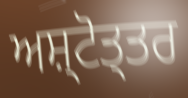
ਅਸ਼੍ਟੋਤ੍ਤਰ